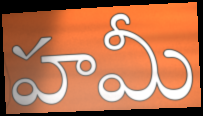
హమీ